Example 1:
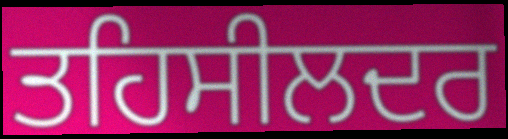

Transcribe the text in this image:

ਤਹਿਸੀਲਦਰ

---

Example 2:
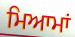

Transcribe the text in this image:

ਮਿਆਮਾਂ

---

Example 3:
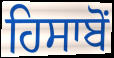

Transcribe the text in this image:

ਹਿਸਾਬੋਂ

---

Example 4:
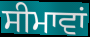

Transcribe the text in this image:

ਸੀਮਾਵਾਂ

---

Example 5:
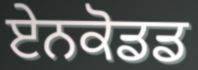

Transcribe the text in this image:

ਏਨਕੋਡਡ